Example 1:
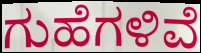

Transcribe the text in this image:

ಗುಹೆಗಳಿವೆ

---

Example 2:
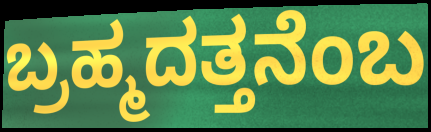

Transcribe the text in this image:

ಬ್ರಹ್ಮದತ್ತನೆಂಬ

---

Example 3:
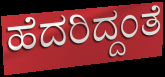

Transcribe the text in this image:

ಹೆದರಿದ್ದಂತೆ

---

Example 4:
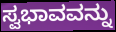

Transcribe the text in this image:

ಸ್ವಭಾವವನ್ನು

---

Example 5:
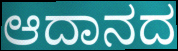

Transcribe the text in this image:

ಆದಾನದ